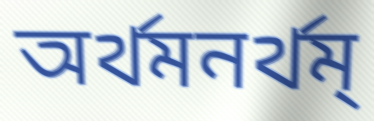
অর্থমনর্থম্